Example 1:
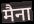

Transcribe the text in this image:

मैना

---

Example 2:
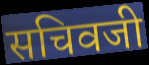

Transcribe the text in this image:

सचिवजी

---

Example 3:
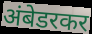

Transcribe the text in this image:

अंबेडरकर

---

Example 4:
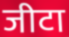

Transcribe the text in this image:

जीटा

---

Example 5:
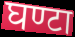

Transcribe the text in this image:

घण्टा